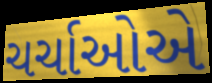
ચર્ચાઓએ